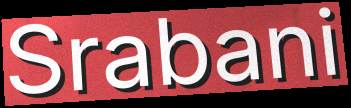
Srabani